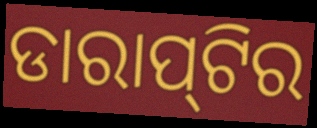
ଡାରାପ୍‌ଟିର